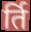
र्ति